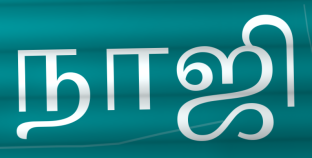
நாஜி